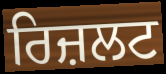
ਰਿਜ਼ਲਟ